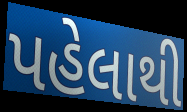
પહેલાથી